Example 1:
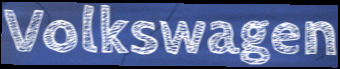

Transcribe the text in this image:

Volkswagen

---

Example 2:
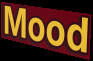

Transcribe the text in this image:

Mood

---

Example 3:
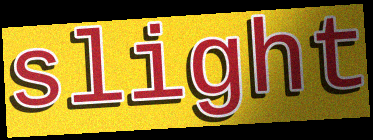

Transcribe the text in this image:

slight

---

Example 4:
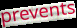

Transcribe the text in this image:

prevents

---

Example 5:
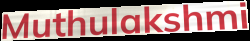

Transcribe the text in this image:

Muthulakshmi